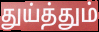
துய்த்தும்